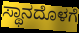
ಸ್ಥಾನದೊಳಗೆ